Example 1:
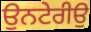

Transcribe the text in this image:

ਉਨਟੇਰੀਉ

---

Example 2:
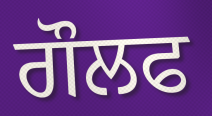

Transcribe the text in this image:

ਗੌਲਫ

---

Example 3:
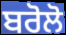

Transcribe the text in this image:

ਬਰੋਲੋ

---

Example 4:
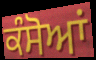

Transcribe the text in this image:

ਕੰਸੋਆਂ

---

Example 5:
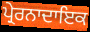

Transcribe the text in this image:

ਪ੍ਰੇਰਨਾਦਾਇਕ